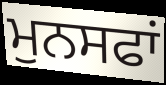
ਮੁਨਸਫਾਂ